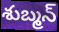
శుబ్మన్